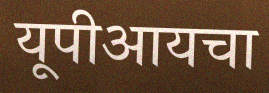
यूपीआयचा